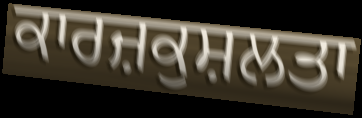
ਕਾਰਜ਼ਕੁਸ਼ਲਤਾ